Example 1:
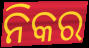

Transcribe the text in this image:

ନିକର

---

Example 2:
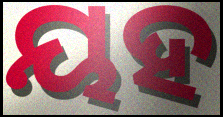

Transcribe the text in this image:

ୟହ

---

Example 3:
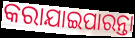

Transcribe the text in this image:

କରାଯାଇପାରନ୍ତା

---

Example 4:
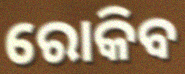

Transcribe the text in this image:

ରୋକିବ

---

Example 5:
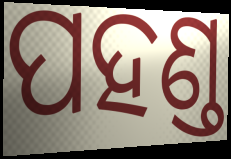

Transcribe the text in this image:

ପହଣ୍ଡ